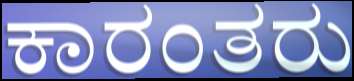
ಕಾರಂತರು